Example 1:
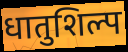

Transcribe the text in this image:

धातुशिल्प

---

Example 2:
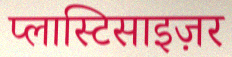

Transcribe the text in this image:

प्लास्टिसाइज़र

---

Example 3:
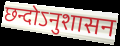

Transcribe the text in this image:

छन्दोऽनुशासन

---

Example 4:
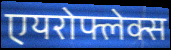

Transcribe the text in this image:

एयरोफ्लेक्स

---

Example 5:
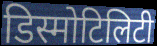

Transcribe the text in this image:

डिस्मोटिलिटी